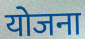
योजना